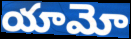
యామో